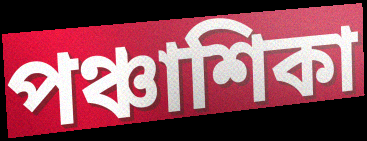
পঞ্চাশিকা